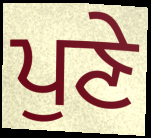
ਪੁਣੇ